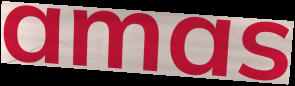
amas